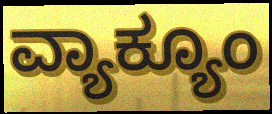
ವ್ಯಾಕ್ಯೂಂ